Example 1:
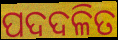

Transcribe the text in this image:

ପଦଦଳିତ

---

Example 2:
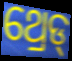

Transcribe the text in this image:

ଥ୍ରେଡ୍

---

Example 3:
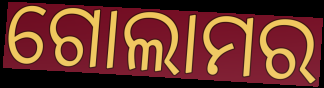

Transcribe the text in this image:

ଗୋଲାମର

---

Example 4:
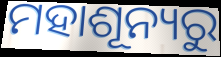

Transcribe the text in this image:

ମହାଶୂନ୍ୟରୁ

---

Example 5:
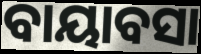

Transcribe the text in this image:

ବାୟାବସା